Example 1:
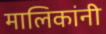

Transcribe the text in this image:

मालिकांनी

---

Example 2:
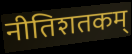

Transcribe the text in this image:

नीतिशतकम्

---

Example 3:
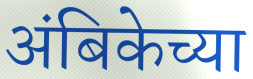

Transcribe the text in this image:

अंबिकेच्या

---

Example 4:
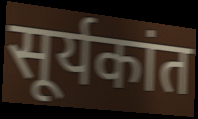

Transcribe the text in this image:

सूर्यकांत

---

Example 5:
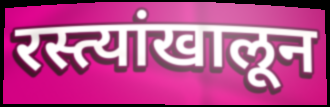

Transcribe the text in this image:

रस्त्यांखालून